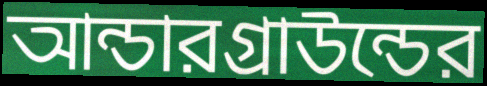
আন্ডারগ্রাউন্ডের